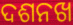
ଦଶନଖ